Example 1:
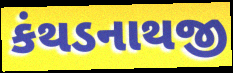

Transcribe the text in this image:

કંથડનાથજી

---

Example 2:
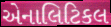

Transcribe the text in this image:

એનાલિટિકલ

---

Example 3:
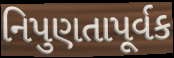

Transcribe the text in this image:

નિપુણતાપૂર્વક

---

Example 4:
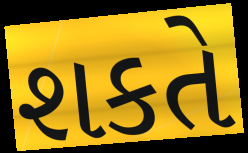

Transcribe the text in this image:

શકતે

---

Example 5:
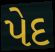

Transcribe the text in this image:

પેદ